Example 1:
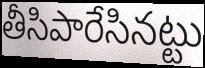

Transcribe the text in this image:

తీసిపారేసినట్టు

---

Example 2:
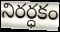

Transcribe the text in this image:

నిరర్ధకం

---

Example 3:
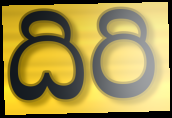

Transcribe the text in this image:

దిరి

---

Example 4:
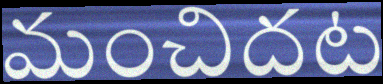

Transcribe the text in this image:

మంచిదట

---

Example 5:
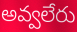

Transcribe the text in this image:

అవ్వలేరు